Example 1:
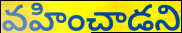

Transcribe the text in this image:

వహించాడని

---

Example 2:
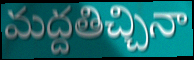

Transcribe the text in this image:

మద్దతిచ్చినా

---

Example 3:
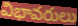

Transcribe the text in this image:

విభావరులు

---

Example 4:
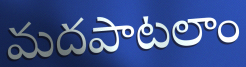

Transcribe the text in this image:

మదపాటలాం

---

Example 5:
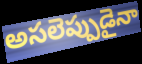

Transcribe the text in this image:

అసలెప్పుడైనా